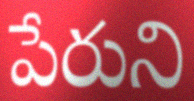
పేరుని